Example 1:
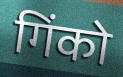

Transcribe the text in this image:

गिंको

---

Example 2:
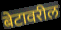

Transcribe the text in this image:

बेटावरील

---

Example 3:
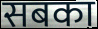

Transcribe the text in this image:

सबका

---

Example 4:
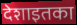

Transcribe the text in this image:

देशाइतका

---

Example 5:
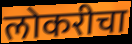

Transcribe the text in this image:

लोकरीचा